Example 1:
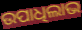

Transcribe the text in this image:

ଉପାଧିଲାଭ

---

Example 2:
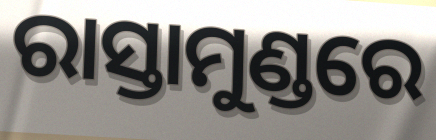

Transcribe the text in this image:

ରାସ୍ତାମୁଣ୍ଡରେ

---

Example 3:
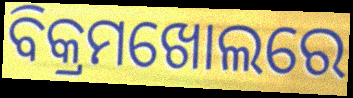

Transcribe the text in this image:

ବିକ୍ରମଖୋଲରେ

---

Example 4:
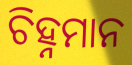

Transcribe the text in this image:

ଚିହ୍ନମାନ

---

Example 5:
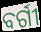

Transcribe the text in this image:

ବର୍ଗୀ